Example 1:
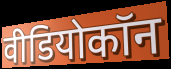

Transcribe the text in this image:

वीडियोकॉन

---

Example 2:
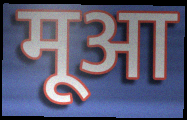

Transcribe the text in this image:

मूआ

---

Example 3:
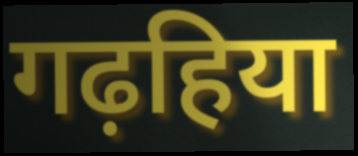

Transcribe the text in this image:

गढ़हिया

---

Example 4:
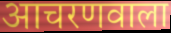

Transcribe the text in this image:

आचरणवाला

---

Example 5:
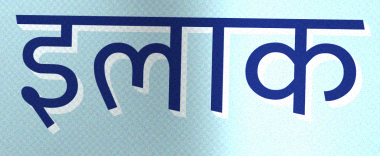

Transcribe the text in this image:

इलाक